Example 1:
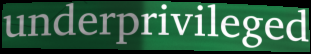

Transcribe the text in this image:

underprivileged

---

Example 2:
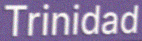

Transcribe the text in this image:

Trinidad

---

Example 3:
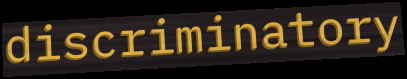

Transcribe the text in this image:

discriminatory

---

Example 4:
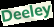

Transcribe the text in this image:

Deeley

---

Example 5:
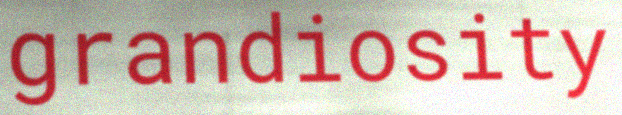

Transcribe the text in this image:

grandiosity